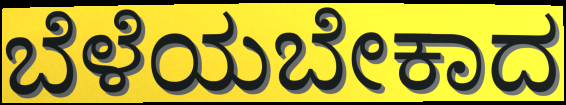
ಬೆಳೆಯಬೇಕಾದ